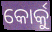
କୋର୍କୁ